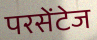
परसेंटेज